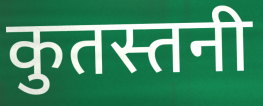
कुतस्तनी